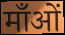
माँओं